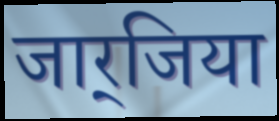
जार्जिया